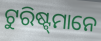
ଟୁରିଷ୍ଟ୍‍ମାନେ